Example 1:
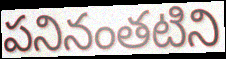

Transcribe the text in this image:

పనినంతటిని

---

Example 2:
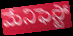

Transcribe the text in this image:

మేనిఫెస్టో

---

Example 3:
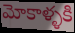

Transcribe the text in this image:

మోకాళ్ళకి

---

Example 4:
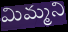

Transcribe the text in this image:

మిమ్మని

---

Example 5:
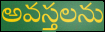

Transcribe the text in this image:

అవస్తలను